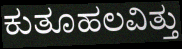
ಕುತೂಹಲವಿತ್ತು